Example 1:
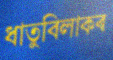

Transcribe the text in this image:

ধাতুবিলাকৰ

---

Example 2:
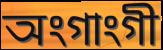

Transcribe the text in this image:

অংগাংগী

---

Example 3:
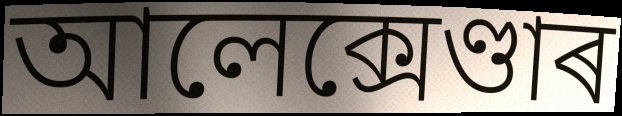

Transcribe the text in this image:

আলেক্সেণ্ডাৰ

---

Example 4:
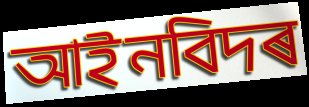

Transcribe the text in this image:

আইনবিদৰ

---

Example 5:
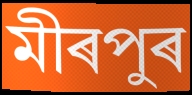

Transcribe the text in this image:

মীৰপুৰ